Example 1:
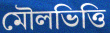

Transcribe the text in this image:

মৌলভিত্তি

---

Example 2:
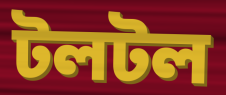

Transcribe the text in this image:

টলটল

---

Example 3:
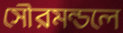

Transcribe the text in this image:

সৌরমন্ডলে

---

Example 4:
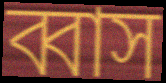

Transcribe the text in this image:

ব্বাস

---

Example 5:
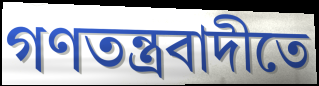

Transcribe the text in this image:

গণতন্ত্রবাদীতে